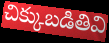
చిక్కుబడితివి